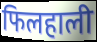
फिलहाली